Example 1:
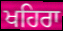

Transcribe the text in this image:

ਖਹਿਰਾ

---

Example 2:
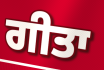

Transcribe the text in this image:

ਗੀਤਾ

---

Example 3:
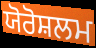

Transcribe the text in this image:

ਯੋਰੋਸ਼ਲਮ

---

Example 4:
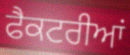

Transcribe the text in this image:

ਫੈਕਟਰੀਆਂ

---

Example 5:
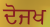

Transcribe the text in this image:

ਦੋਜਖ